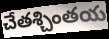
చేతశ్చింతయ